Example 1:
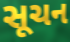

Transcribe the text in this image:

સૂચન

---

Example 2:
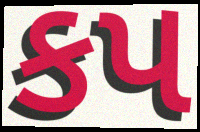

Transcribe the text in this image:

કપ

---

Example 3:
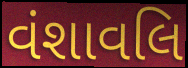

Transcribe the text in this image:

વંશાવલિ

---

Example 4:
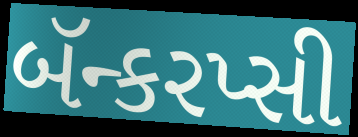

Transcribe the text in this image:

બૅન્કરપ્સી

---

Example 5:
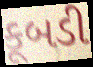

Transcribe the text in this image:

કૂબડી